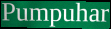
Pumpuhar